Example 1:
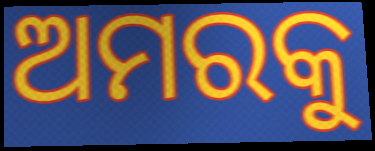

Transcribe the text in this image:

ଅମରକୁ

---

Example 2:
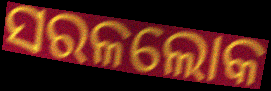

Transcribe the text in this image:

ସରଳଲୋକ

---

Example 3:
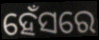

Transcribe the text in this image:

ହେଁସରେ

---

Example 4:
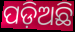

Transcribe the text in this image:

ପଡ଼ିଅଛି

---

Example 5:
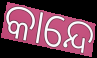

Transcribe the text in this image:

କାନ୍ଦେ